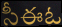
సీఈఓ